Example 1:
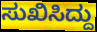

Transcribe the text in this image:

ಸುಖಿಸಿದ್ದು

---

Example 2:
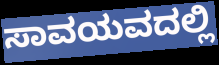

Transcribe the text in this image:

ಸಾವಯವದಲ್ಲಿ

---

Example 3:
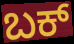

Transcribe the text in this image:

ಬಕ್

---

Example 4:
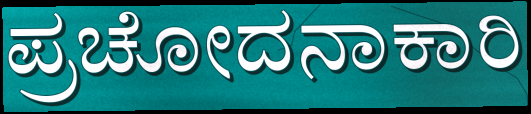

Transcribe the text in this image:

ಪ್ರಚೋದನಾಕಾರಿ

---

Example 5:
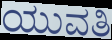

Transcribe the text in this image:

ಯುವತಿ